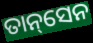
ତାନ୍‌ସେନ